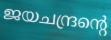
ജയചന്ദ്രന്റെ